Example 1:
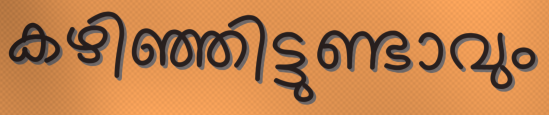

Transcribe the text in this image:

കഴിഞ്ഞിട്ടുണ്ടാവും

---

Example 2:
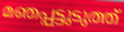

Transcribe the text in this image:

മഞപ്പട്ടുടുത്ത്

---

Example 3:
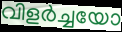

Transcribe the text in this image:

വിളർച്ചയോ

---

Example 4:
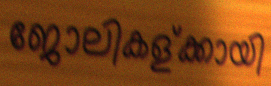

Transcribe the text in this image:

ജോലികള്ക്കായി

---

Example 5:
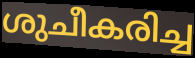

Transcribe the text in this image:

ശുചീകരിച്ച